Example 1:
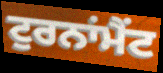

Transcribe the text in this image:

ਟੁਰਨਾਂਮੈਂਟ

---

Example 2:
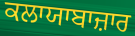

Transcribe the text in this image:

ਕਲਾਯਾਬਾਜ਼ਾਰ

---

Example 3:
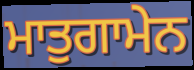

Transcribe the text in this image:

ਮਾਤੁਗਾਮੇਨ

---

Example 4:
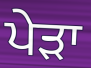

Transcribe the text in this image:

ਪੇੜਾ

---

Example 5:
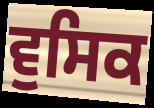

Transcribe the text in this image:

ਵੁਸਿਕ